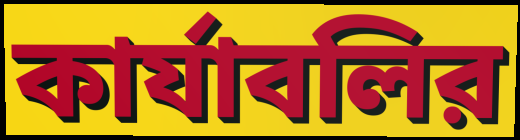
কার্যাবলির